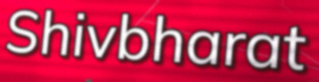
Shivbharat